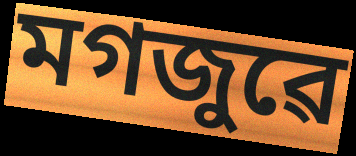
মগজুৱে